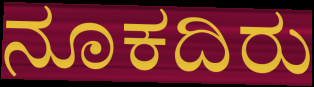
ನೂಕದಿರು